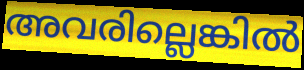
അവരില്ലെങ്കിൽ